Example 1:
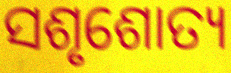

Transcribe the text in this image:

ସଶୃଶୋତ୍ୟ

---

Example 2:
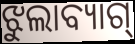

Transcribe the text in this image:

ଝୁଲାବ୍ୟାଗ୍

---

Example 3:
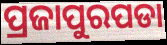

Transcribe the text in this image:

ପ୍ରଜାପୁରପଡା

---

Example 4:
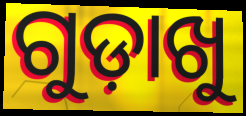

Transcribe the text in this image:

ଗୁଡ଼ାଖୁ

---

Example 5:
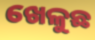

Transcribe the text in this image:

ଖେଳୁଛ